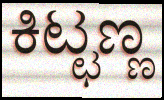
ಕಿಟ್ಟಣ್ಣ